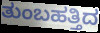
ತುಂಬಹತ್ತಿದ